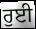
ਰੁਈ